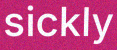
sickly